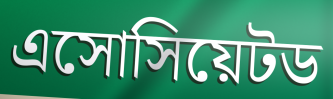
এসোসিয়েটড